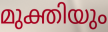
മുക്തിയും